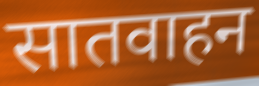
सातवाहन